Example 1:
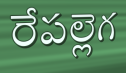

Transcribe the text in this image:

రేపల్లెగ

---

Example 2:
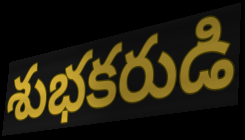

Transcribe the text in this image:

శుభకరుడి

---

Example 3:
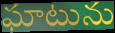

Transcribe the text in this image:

ఘాటును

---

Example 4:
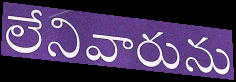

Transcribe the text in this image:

లేనివారును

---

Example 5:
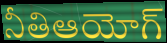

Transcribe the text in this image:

నీతిఆయోగ్